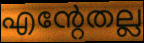
എന്റേതല്ല